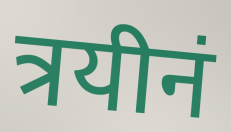
त्रयीनं